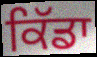
ਕਿੱਡਾ